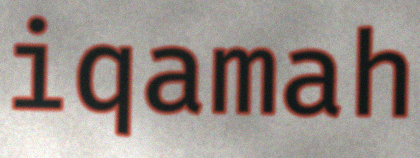
iqamah